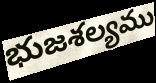
భుజశల్యము